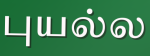
புயல்ல